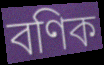
বণিক